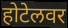
होटेलवर